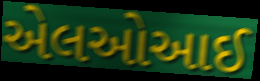
એલઓઆઈ